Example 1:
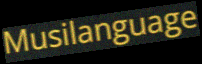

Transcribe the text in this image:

Musilanguage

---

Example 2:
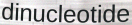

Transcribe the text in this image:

dinucleotide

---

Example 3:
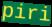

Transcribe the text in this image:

piri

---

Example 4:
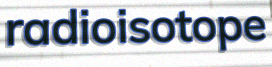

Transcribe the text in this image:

radioisotope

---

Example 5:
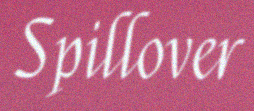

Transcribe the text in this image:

Spillover